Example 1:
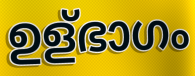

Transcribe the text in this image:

ഉള്ഭാഗം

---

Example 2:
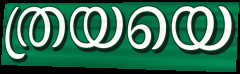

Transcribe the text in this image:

ത്രയയെ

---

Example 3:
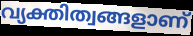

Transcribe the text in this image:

വ്യക്തിത്വങ്ങളാണ്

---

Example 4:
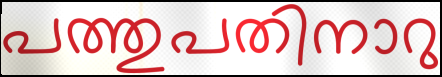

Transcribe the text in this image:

പത്തുപതിനാറു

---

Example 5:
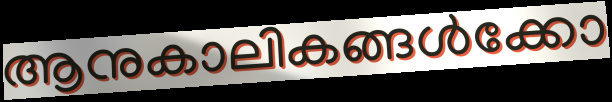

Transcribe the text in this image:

ആനുകാലികങ്ങൾക്കോ